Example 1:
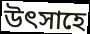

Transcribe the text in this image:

উৎসাহে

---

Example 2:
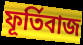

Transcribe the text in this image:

ফূর্তিবাজ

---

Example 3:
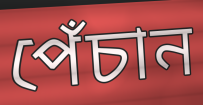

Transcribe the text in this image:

পেঁচান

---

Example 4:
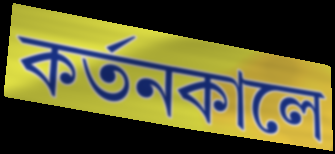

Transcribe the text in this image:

কর্তনকালে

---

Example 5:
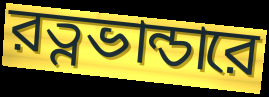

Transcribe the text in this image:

রত্নভান্ডারে